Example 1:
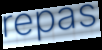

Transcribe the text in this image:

repas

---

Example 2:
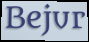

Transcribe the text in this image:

Bejur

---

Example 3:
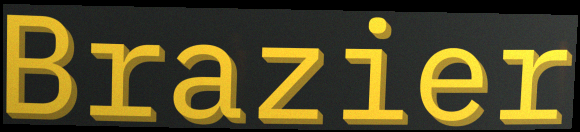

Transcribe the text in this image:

Brazier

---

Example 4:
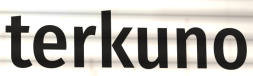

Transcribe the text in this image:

terkuno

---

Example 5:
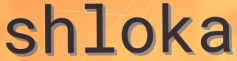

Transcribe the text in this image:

shloka